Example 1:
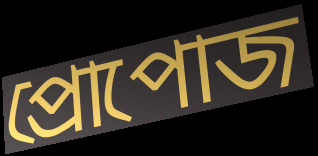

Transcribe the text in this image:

প্রোপোজ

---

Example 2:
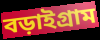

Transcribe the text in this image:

বড়াইগ্রাম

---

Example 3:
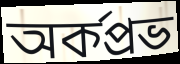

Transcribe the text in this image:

অর্কপ্রভ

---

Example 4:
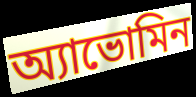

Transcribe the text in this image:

অ্যাভোমিন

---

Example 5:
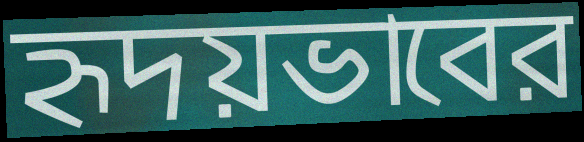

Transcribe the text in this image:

হৃদয়ভাবের